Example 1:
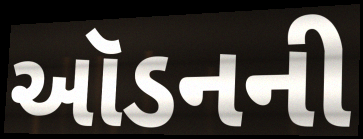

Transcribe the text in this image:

ઑડનની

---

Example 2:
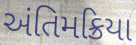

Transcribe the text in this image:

અંતિમક્રિયા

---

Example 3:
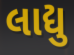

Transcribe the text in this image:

લાદ્યુ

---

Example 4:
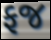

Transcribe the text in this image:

ફજ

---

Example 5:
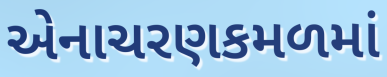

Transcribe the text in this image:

એનાચરણકમળમાં